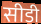
सीडी